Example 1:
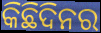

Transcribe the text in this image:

କିଛିଦିନର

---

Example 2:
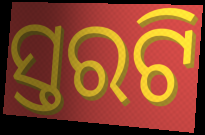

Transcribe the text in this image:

ସ୍ତରଟି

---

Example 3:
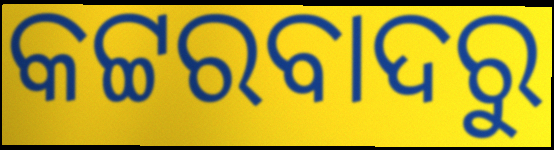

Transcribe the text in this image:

କଟ୍ଟରବାଦରୁ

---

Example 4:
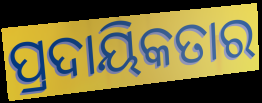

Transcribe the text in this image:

ପ୍ରଦାୟିକତାର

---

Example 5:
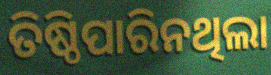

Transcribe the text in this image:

ତିଷ୍ଠିପାରିନଥିଲା